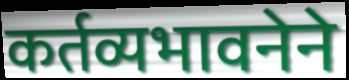
कर्तव्यभावनेने